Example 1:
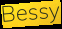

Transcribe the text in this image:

Bessy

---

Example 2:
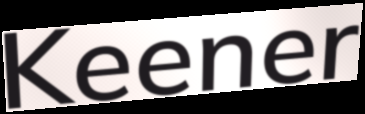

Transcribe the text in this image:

Keener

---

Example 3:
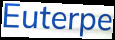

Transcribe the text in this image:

Euterpe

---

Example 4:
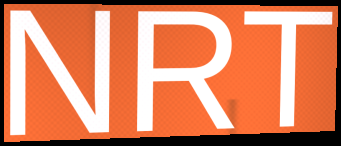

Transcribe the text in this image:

NRT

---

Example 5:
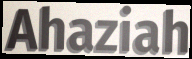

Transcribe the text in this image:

Ahaziah